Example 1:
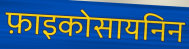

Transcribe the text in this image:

फ़ाइकोसायनिन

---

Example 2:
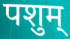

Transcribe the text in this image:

पशुम्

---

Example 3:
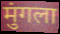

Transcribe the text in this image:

मुंगला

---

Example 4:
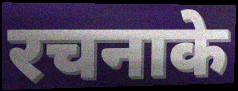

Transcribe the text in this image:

रचनाके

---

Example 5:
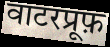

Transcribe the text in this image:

वाटरप्रूफ़